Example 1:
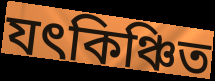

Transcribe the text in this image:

যৎকিঞ্চিত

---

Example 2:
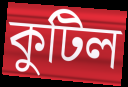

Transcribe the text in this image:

কুটিল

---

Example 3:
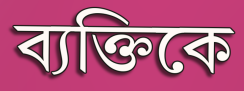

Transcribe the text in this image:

ব্যক্তিকে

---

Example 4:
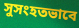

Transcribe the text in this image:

সুসংহতভাবে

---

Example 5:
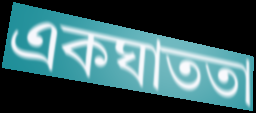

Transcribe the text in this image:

একঘাততা